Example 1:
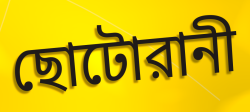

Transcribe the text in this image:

ছোটোরানী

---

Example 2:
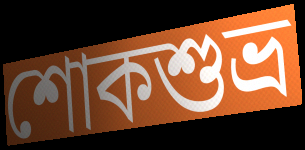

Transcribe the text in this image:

শোকশুভ্র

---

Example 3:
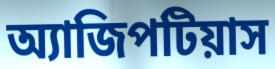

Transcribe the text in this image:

অ্যাজিপটিয়াস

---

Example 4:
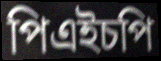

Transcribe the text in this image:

পিএইচপি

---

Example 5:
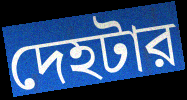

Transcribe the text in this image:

দেহটার